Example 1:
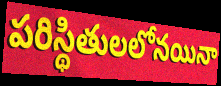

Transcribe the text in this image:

పరిస్థితులలోనయినా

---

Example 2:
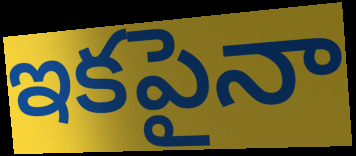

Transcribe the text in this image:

ఇకపైనా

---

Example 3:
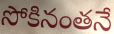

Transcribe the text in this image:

సోకినంతనే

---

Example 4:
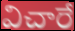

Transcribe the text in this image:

విచారే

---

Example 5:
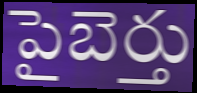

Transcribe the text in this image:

పైబెర్తు